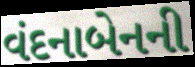
વંદનાબેનની